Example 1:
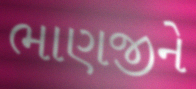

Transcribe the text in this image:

ભાણજીને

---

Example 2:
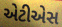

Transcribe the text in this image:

એટીએસ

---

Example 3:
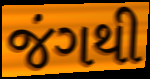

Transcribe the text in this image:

જંગથી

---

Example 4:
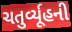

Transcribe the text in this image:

ચતુર્વ્યૂહની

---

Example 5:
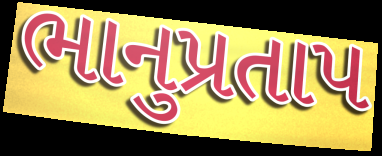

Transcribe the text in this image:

ભાનુપ્રતાપ